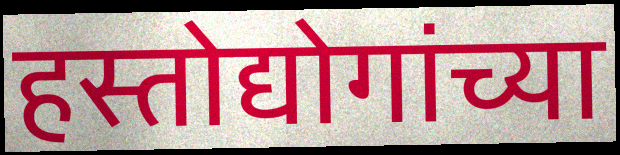
हस्तोद्योगांच्या